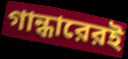
গান্ধারেরই